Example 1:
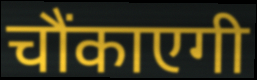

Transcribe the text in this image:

चौंकाएगी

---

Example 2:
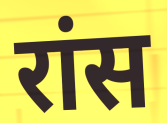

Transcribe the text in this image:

रांस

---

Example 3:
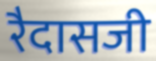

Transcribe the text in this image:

रैदासजी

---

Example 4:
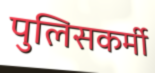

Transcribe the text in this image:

पुलिसकर्मी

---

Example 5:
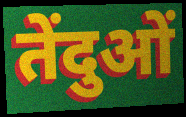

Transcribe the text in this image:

तेंदुओं